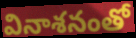
వినాశనంతో